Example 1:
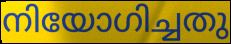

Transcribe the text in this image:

നിയോഗിച്ചതു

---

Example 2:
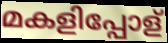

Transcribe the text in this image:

മകളിപ്പോള്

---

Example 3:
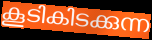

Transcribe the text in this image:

കൂടികിടക്കുന്ന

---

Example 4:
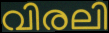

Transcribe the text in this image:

വിരലി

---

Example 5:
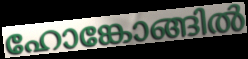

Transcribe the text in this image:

ഹോങ്കോങ്ങിൽ